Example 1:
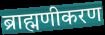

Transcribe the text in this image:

ब्राह्मणीकरण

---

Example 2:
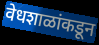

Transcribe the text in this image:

वेधशाळांकडून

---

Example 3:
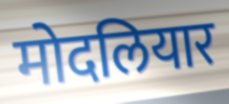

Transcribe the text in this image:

मोदलियार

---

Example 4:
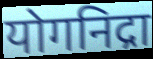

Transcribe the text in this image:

योगनिद्रा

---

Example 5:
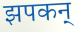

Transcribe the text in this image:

झपकन्